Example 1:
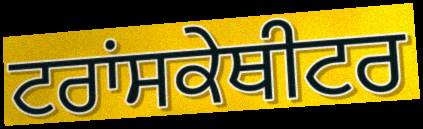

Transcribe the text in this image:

ਟਰਾਂਸਕੇਥੀਟਰ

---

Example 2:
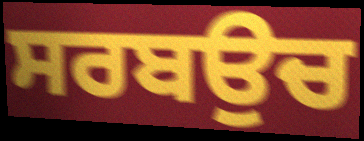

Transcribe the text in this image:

ਸਰਬਉਚ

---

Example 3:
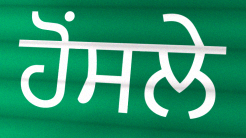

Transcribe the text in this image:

ਹੋਂਸਲੇ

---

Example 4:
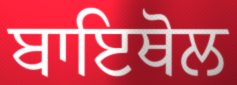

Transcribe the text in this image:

ਬਾਇਥੋਲ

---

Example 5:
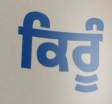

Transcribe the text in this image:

ਕਿਰੂੰ